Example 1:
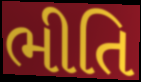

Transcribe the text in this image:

ભીતિ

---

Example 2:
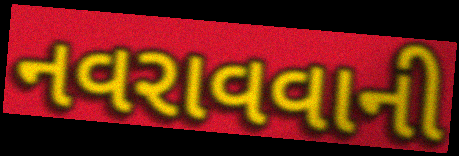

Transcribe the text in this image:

નવરાવવાની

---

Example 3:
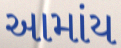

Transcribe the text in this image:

આમાંય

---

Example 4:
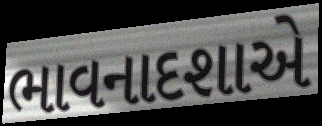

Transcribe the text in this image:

ભાવનાદશાએ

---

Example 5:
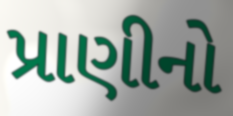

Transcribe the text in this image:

પ્રાણીનો